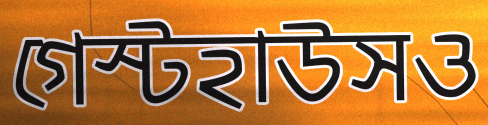
গেস্টহাউসও